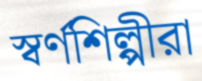
স্বর্ণশিল্পীরা